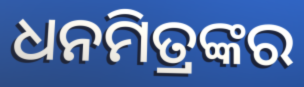
ଧନମିତ୍ରଙ୍କର